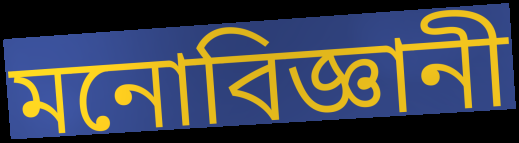
মনোবিজ্ঞানী